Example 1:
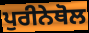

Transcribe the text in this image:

ਪੁਰੀਨੇਥੋਲ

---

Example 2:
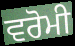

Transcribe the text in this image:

ਵਰੋਮੀ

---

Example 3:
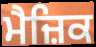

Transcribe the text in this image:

ਮੈਜ਼ਿਕ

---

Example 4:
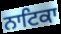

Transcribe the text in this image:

ਨਾਟਿਕਾ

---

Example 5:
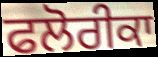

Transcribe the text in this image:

ਫਲੋਰੀਕਾ